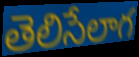
తెలిసేలాగ